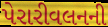
પેરારીવલનની